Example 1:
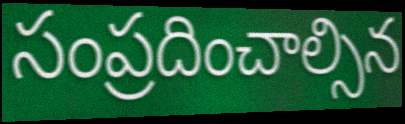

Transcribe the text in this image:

సంప్రదించాల్సిన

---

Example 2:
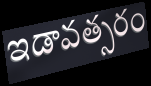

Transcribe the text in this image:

ఇడావత్సరం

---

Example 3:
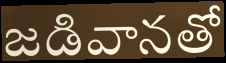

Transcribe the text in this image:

జడివానతో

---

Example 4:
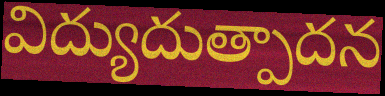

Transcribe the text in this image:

విద్యుదుత్పాదన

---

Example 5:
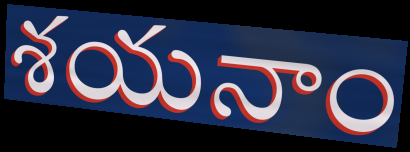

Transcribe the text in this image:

శయనాం